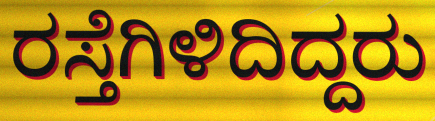
ರಸ್ತೆಗಿಳಿದಿದ್ದರು